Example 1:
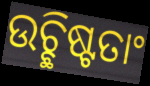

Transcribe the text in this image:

ଉଚ୍ଛିଷ୍ଟତାଂ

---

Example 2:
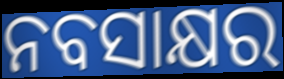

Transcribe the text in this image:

ନବସାକ୍ଷର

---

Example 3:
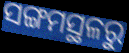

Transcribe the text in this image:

ସଙ୍ଗମସ୍ଥଳରୁ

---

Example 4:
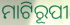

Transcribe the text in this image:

ମାଟିରୂପୀ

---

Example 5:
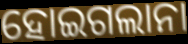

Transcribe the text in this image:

ହୋଇଗଲାନା